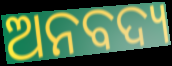
ଅନବଦ୍ୟ